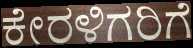
ಕೇರಳಿಗರಿಗೆ